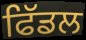
ਫਿੱਡਲ